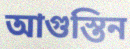
আগুস্তিন